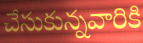
చేసుకున్నవారికి